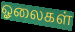
ஓலைகள்